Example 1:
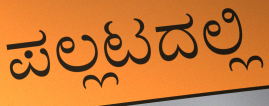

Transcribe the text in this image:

ಪಲ್ಲಟದಲ್ಲಿ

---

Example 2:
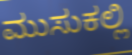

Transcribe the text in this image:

ಮುಸುಕಲ್ಲಿ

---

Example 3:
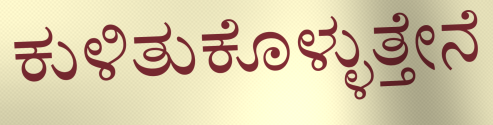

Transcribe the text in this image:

ಕುಳಿತುಕೊಳ್ಳುತ್ತೇನೆ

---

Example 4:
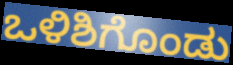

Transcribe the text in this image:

ಒಳಿಶಿಗೊಂಡು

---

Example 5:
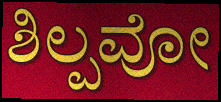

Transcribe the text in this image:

ಶಿಲ್ಪವೋ